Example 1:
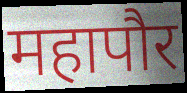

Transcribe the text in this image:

महापौर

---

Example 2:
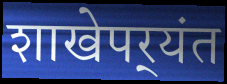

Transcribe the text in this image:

शाखेपर्यंत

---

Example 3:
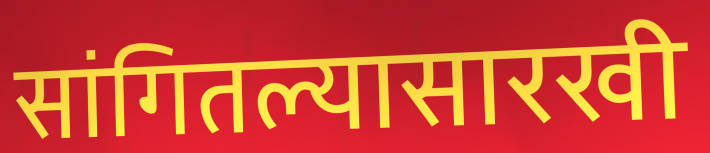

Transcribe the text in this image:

सांगितल्यासारखी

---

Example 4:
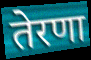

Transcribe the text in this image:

तेरणा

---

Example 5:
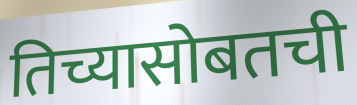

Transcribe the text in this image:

तिच्यासोबतची